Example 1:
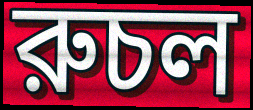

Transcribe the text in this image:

রুচল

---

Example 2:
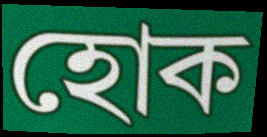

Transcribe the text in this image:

হোক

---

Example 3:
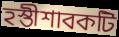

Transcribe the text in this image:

হস্তীশাবকটি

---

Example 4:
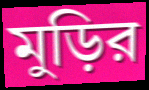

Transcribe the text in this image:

মুড়ির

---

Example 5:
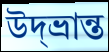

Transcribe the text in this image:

উদ্‌ভ্রান্ত